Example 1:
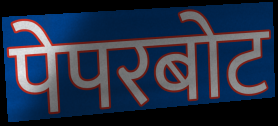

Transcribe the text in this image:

पेपरबोट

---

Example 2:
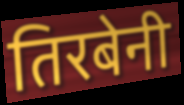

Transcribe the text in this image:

तिरबेनी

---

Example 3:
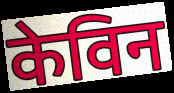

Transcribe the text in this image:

केविन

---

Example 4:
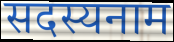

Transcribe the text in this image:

सदस्यनाम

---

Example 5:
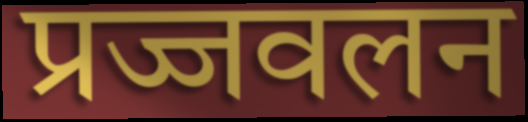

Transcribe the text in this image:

प्रज्‍जवलन